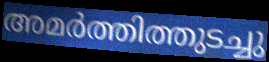
അമർത്തിത്തുടച്ചു